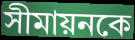
সীমায়নকে